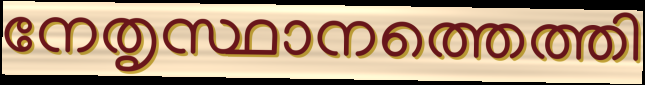
നേതൃസ്ഥാനത്തെത്തി